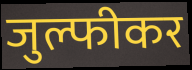
जुल्फीकर